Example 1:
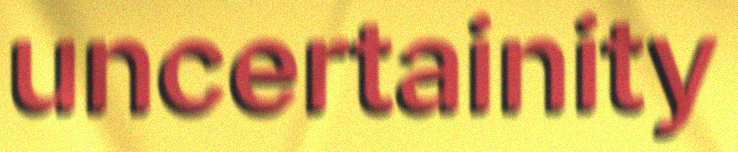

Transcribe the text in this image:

uncertainity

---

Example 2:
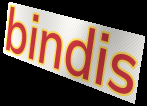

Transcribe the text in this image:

bindis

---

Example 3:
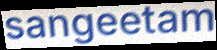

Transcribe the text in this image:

sangeetam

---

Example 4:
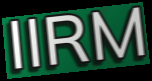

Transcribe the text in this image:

IIRM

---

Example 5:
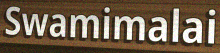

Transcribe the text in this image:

Swamimalai